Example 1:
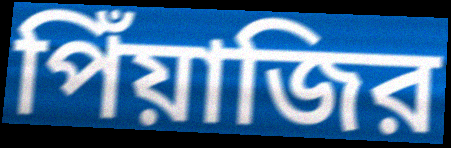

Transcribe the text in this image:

পিঁয়াজির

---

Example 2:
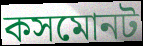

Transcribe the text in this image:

কসমোনট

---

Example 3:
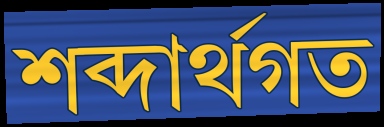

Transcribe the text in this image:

শব্দার্থগত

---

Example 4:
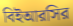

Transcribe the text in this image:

বিইআরসির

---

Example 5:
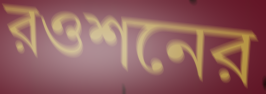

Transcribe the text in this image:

রওশনের